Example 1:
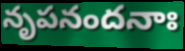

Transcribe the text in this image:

నృపనందనాః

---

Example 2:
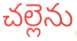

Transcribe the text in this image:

చల్లెను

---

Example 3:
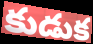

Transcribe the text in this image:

కుడుక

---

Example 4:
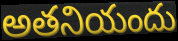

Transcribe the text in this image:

అతనియందు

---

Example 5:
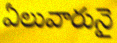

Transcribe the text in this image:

ఏలువారునై